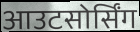
आउटसोर्सिंग